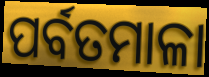
ପର୍ବତମାଳା